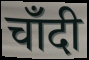
चाँदी